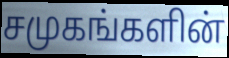
சமுகங்களின்